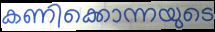
കണിക്കൊന്നയുടെ